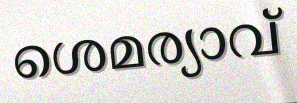
ശെമര്യാവ്